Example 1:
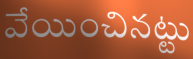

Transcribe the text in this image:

వేయించినట్టు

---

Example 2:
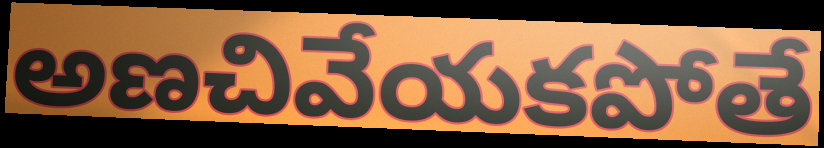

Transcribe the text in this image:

అణచివేయకపోతే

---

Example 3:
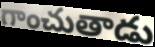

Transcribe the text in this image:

గాంచుతాడు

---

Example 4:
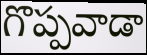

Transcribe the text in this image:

గొప్పవాడా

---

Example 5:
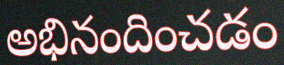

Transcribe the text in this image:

అభినందించడం